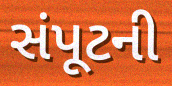
સંપૂટની